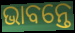
ଭାବନ୍ତେ